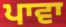
ਪਾਵਾ